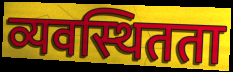
व्यवस्थितता